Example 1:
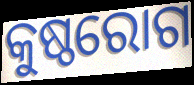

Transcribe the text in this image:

କୁଷ୍ଠରୋଗ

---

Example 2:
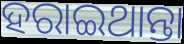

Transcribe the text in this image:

ହରାଇଥାନ୍ତା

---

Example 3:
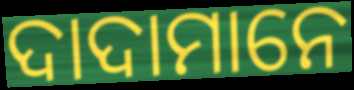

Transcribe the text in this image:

ଦାଦାମାନେ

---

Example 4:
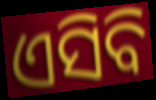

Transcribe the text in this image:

ଏସିବି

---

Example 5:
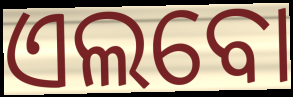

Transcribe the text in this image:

ଏଲବୋ